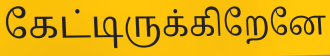
கேட்டிருக்கிறேனே